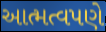
આત્મત્વપણે